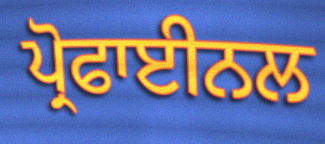
ਪ੍ਰੋਫਾਈਨਲ